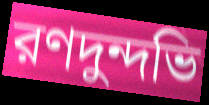
রণদুন্দভি